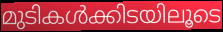
മുടികൾക്കിടയിലൂടെ